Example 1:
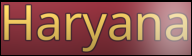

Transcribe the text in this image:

Haryana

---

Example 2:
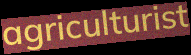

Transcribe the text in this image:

agriculturist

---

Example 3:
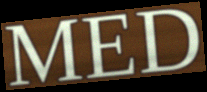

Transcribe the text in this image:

MED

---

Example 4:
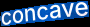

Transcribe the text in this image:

concave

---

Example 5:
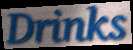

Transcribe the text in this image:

Drinks